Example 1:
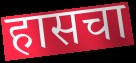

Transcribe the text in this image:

हासचा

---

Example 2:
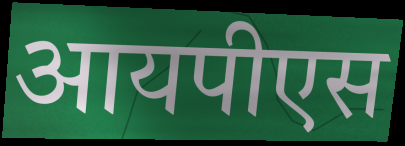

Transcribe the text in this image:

आयपीएस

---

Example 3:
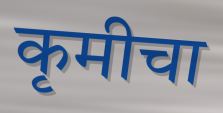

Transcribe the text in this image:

कृमीचा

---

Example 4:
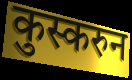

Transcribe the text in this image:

कुस्करुन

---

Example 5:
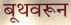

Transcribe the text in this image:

बूथवरून